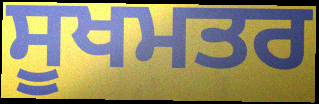
ਸੂਖਮਤਰ